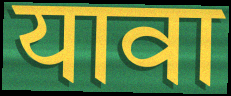
यावा